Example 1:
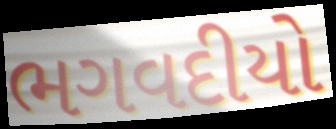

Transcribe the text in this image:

ભગવદીયો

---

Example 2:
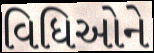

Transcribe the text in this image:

વિધિઓને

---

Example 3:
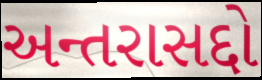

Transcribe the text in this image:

અન્તરાસદ્દો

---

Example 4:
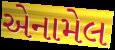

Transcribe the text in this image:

એનામેલ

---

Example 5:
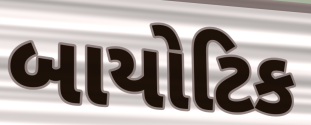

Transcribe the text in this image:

બાયોટિક